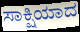
ಸಾಕ್ಷಿಯಾದ